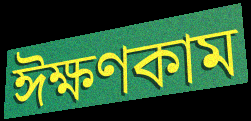
ঈক্ষণকাম